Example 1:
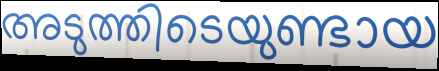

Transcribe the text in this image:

അടുത്തിടെയുണ്ടായ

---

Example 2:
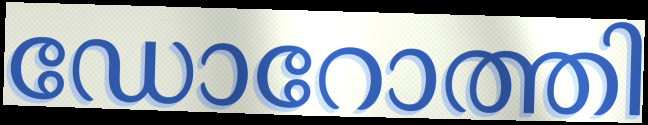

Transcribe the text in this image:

ഡോറോത്തി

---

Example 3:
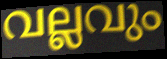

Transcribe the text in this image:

വല്ലവും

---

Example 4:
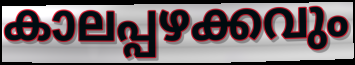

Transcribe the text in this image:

കാലപ്പഴക്കവും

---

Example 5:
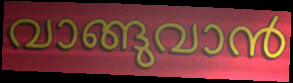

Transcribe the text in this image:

വാങ്ങുവാൻ